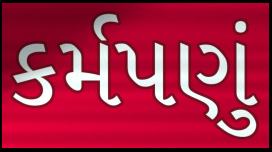
કર્મપણું